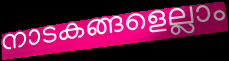
നാടകങ്ങളെല്ലാം